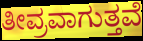
ತೀವ್ರವಾಗುತ್ತವೆ